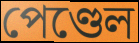
পেণ্ডেল